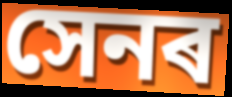
সেনৰ